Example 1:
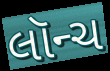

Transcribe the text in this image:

લૉન્ચ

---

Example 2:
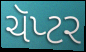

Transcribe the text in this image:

ચૅપ્ટર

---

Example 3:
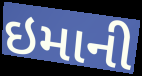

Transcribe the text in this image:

ઇમાની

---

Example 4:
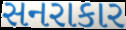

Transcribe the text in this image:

સનરાકાર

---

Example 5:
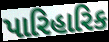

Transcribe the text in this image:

પારિહારિક